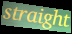
straight